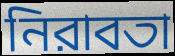
নিরাবতা